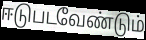
ஈடுபடவேண்டும்